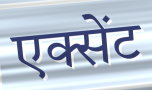
एक्सेंट